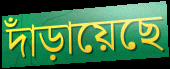
দাঁড়ায়েছে